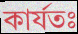
কাৰ্যতঃ